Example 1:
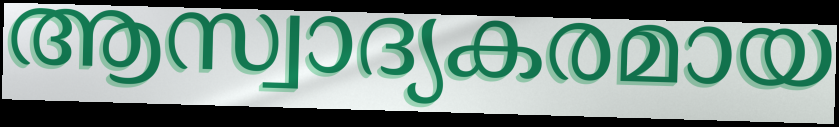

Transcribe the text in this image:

ആസ്വാദ്യകരമായ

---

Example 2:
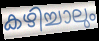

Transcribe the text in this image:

കഴിച്ചാലും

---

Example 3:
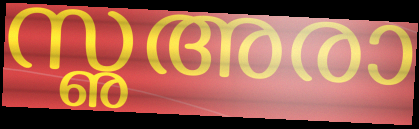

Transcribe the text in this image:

സൢഅരാ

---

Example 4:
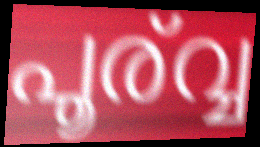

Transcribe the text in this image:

പൂര്വ്വ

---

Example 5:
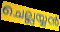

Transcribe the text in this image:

ചെല്ലയ്യൻ